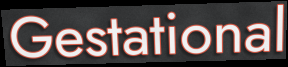
Gestational